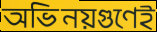
অভিনয়গুণেই